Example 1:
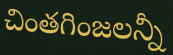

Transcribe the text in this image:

చింతగింజలన్నీ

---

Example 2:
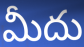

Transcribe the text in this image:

మీదు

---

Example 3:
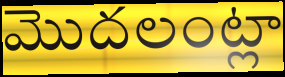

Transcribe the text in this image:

మొదలంట్లా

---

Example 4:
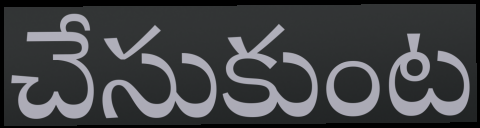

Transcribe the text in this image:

చేసుకుంట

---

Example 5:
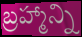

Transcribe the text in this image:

బ్రహ్మాన్ని